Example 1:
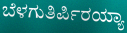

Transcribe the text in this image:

ಬೆಳಗುತಿರ್ಪಿರಯ್ಯಾ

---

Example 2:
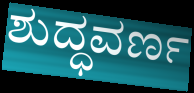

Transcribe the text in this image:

ಶುದ್ಧವರ್ಣ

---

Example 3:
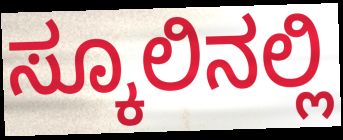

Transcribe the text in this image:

ಸ್ಕೂಲಿನಲ್ಲಿ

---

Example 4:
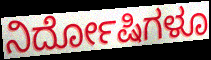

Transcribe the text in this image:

ನಿರ್ದೋಷಿಗಳೂ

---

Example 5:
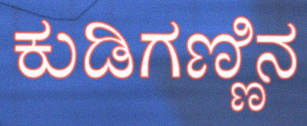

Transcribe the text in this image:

ಕುಡಿಗಣ್ಣಿನ